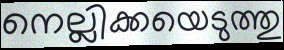
നെല്ലിക്കയെടുത്തു